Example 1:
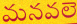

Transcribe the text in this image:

మనవలె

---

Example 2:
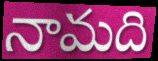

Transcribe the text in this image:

నామది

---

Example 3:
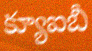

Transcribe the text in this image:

క్యూఐబీ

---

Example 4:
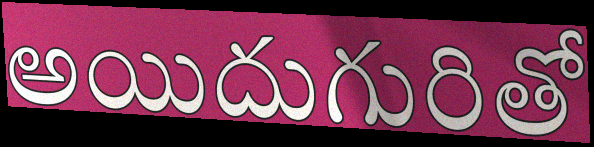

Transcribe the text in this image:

అయిదుగురితో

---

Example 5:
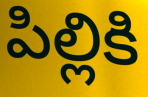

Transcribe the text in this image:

పిల్లికి